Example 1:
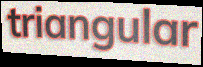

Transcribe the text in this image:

triangular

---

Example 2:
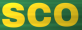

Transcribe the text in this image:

SCO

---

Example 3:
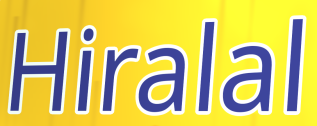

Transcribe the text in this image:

Hiralal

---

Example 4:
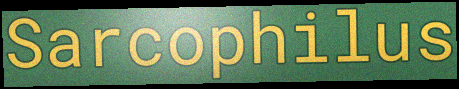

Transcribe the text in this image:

Sarcophilus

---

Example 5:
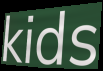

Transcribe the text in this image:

kids